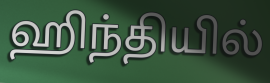
ஹிந்தியில்